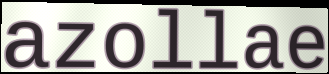
azollae